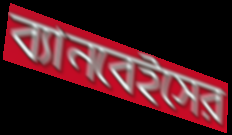
ব্যানবেইসের